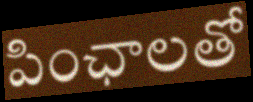
పింఛాలతో